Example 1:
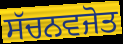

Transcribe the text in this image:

ਸੱਚਨਵਜੋਤ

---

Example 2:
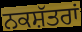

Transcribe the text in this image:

ਨਕਸ਼ੱਤਰਾਂ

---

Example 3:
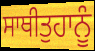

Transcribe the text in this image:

ਸਾਥੀਤੁਹਾਨੂੰ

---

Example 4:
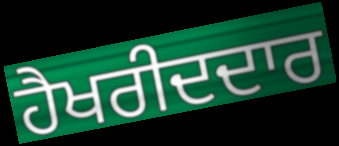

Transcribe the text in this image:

ਹੈਖਰੀਦਦਾਰ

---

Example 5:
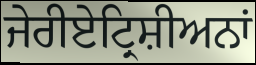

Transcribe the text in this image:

ਜੇਰੀਏਟ੍ਰਿਸ਼ੀਅਨਾਂ